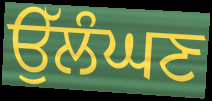
ਉੱਲੰਘਣ